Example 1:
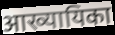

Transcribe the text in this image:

आख्यायिका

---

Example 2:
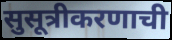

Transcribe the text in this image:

सुसूत्रीकरणाची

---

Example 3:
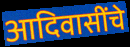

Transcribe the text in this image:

आदिवासींचे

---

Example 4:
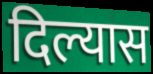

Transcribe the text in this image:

दिल्यास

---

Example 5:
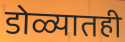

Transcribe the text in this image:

डोळ्यातही